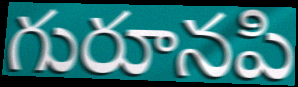
గురూనపి